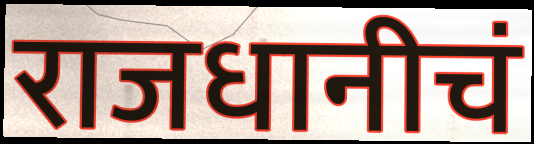
राजधानीचं